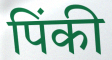
पिंकी